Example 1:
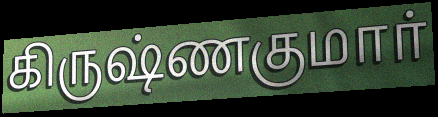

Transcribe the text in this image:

கிருஷ்ணகுமார்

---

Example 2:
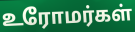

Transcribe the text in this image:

உரோமர்கள்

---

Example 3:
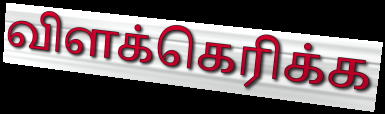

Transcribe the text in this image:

விளக்கெரிக்க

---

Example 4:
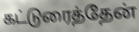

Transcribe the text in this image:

கட்டுரைத்தேன்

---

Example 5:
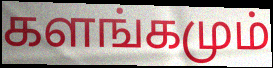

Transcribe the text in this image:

களங்கமும்